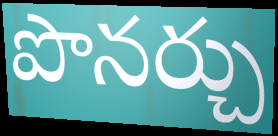
పొనర్చు